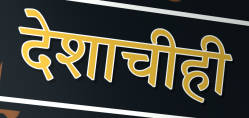
देशाचीही